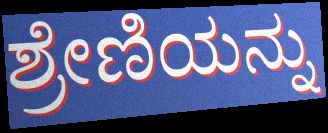
ಶ್ರೇಣಿಯನ್ನು